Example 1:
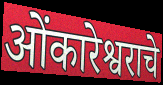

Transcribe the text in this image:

ओंकारेश्वराचे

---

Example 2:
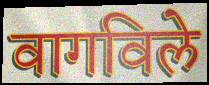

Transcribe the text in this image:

वागविले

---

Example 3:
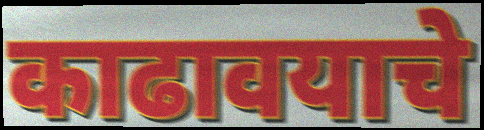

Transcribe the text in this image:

काढावयाचे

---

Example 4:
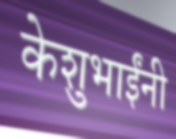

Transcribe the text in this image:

केशुभाईंनी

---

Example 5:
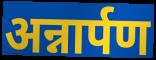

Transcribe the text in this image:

अन्नार्पण